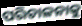
ପରିଚାଳନାକୁ